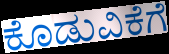
ಕೊಡುವಿಕೆಗೆ